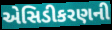
એસિડીકરણની